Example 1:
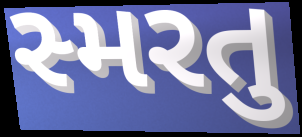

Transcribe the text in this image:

સ્મરતુ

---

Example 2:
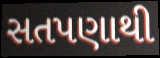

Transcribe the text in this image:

સતપણાથી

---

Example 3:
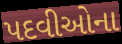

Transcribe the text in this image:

પદવીઓના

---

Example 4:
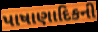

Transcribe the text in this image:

પાષાણાદિકની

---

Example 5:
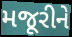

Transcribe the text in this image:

મજૂરીને